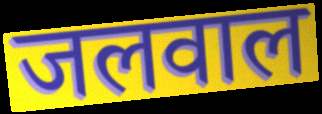
जलवाल